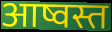
आष्वस्त